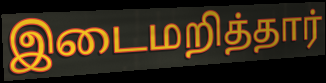
இடைமறித்தார்